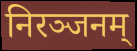
निरञ्जनम्